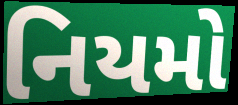
નિયમો